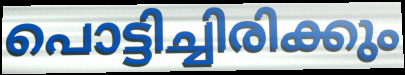
പൊട്ടിച്ചിരിക്കും